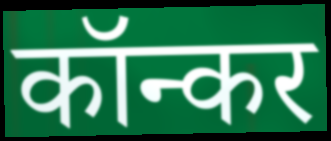
कॉन्कर